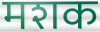
मशक